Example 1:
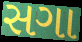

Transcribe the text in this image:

સગા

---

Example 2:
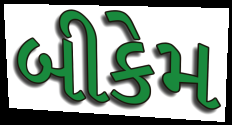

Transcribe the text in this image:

બીકેમ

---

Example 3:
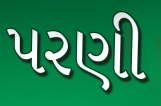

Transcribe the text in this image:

પરણી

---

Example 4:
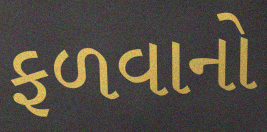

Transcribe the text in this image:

ફળવાનો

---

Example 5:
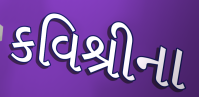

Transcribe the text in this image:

કવિશ્રીના